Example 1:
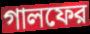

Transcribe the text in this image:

গালফের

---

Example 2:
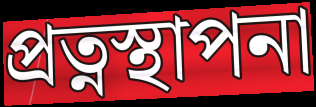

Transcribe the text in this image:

প্রত্নস্থাপনা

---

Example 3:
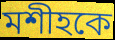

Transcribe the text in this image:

মশীহকে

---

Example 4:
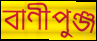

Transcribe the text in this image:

বাণীপুঞ্জ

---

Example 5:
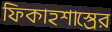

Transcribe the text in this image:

ফিকাহশাস্ত্রের